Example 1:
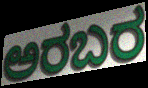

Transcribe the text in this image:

ಅರಬರ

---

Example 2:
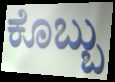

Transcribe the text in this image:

ಕೊಬ್ಬು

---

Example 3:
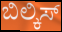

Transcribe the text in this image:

ಬಿಲ್ಕಿಸ್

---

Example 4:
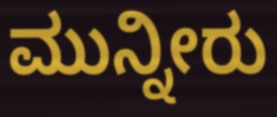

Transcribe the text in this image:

ಮುನ್ನೀರು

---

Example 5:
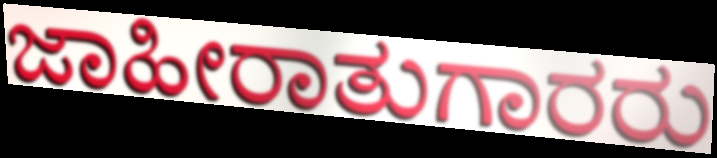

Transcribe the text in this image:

ಜಾಹೀರಾತುಗಾರರು